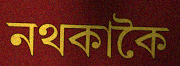
নথকাকৈ